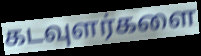
கடவுளர்களை